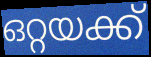
ഒറ്റയക്ക്